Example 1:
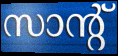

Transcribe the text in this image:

സാന്റ്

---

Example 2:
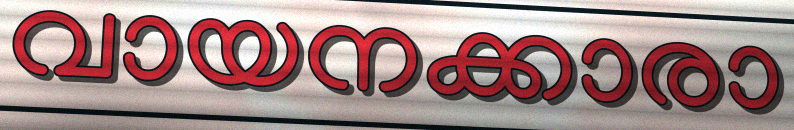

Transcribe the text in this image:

വായനക്കാരാ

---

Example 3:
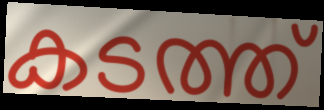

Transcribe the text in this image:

കടത്ത്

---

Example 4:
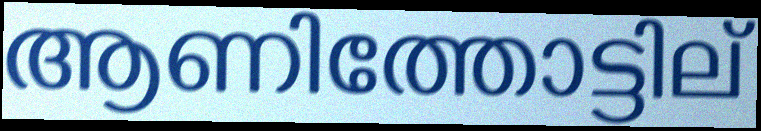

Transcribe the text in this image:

ആണിത്തോട്ടില്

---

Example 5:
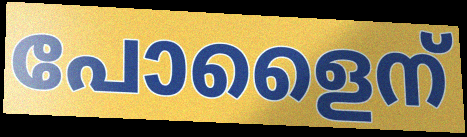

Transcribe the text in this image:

പോളൈന്